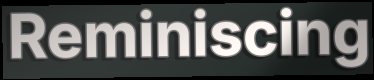
Reminiscing